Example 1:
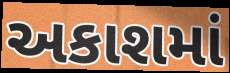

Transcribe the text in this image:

અકાશમાં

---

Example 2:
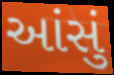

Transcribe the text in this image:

આંસું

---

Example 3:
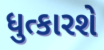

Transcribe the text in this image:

ધુત્કારશે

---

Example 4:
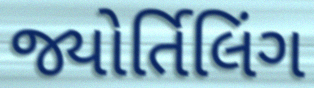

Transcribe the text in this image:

જ્યોર્તિલિંગ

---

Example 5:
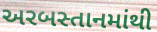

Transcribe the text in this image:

અરબસ્તાનમાંથી